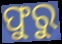
ଫୁରୁ